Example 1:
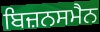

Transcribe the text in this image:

ਬਿਜ਼ਨਸਮੈਨ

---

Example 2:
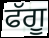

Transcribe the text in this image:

ਫੱਗੂ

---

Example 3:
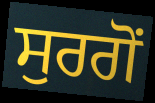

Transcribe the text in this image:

ਸੁਰਗੋਂ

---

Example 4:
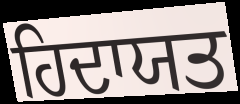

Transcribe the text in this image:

ਹਿਦਾਯਤ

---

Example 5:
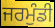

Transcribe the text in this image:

ਜਰਮੁੰਡੀ